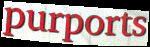
purports